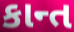
કાન્ત